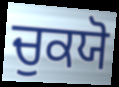
ਚੁਕਯੋ